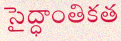
సైద్ధాంతికత